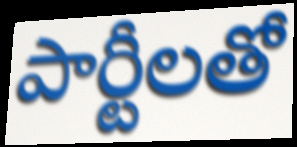
పార్టీలతో